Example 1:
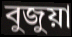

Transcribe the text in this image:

বুজুয়া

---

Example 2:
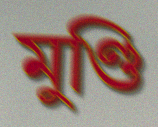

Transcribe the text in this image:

মুণ্ডি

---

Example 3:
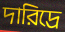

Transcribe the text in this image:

দারিদ্রে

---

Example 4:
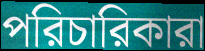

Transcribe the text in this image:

পরিচারিকারা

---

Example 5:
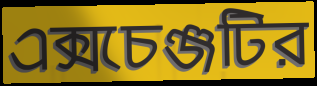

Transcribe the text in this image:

এক্সচেঞ্জটির